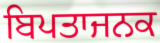
ਬਿਪਤਾਜਨਕ